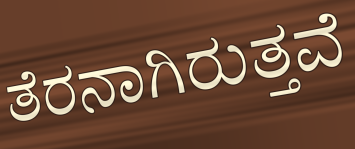
ತೆರನಾಗಿರುತ್ತವೆ